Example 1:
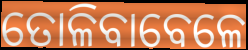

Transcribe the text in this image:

ତୋଳିବାବେଳେ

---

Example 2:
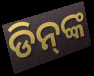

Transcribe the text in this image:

ଡିନ୍‍ଙ୍କ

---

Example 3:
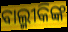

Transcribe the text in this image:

ବାଲ୍ମୀକିଙ୍କ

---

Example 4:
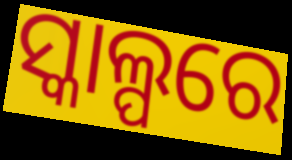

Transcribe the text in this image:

ସ୍କାଲ୍ପରେ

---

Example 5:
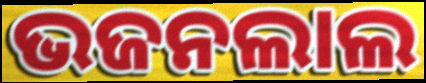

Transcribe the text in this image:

ଭଜନଲାଲ